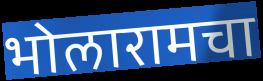
भोलारामचा